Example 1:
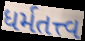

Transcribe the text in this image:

ધર્મતત્ત્વ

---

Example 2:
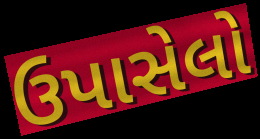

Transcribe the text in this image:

ઉપાસેલો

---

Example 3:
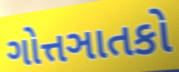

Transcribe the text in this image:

ગોત્તઞાતકો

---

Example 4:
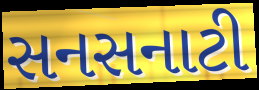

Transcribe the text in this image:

સનસનાટી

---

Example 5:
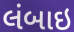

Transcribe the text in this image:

લંબાઇ